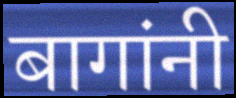
बागांनी